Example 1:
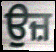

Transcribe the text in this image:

ਉਜ਼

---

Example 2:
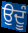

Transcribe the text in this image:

ਉਦੂੰ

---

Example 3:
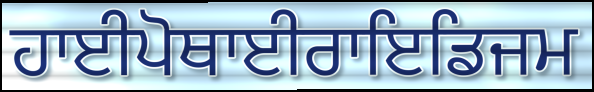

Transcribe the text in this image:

ਹਾਈਪੋਥਾਈਰਾਇਡਿਜਮ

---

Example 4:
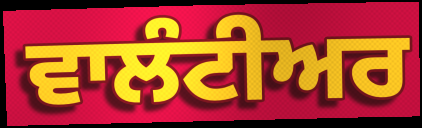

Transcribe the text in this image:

ਵਾਲੰਟੀਅਰ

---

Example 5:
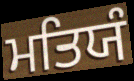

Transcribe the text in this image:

ਮਤਿਯੰ